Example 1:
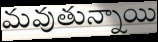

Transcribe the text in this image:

మవుతున్నాయి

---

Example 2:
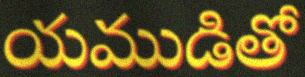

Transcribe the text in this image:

యముడితో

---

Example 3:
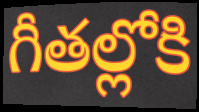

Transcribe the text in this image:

గీతల్లోకి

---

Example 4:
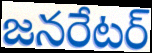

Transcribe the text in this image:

జనరేటర్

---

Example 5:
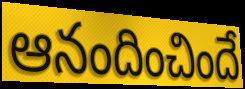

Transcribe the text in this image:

ఆనందించిందే